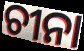
ଚୀନା